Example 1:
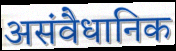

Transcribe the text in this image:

असंवैधानिक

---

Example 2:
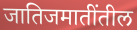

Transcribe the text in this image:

जातिजमातींतील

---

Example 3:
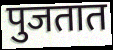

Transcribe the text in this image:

पुजतात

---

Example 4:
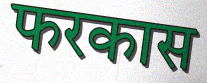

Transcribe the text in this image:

फरकास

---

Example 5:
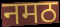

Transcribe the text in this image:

नमठ